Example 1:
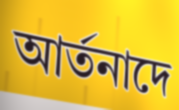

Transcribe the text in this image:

আর্তনাদে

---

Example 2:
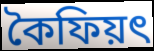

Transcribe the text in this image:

কৈফিয়ৎ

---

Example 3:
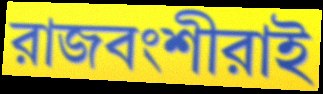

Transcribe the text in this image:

রাজবংশীরাই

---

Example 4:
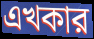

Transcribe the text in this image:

এখকার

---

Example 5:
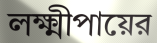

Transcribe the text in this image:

লক্ষ্মীপায়ের